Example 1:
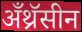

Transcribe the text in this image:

अँथ्रॅसीन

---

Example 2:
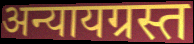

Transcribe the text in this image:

अन्यायग्रस्त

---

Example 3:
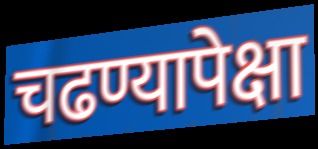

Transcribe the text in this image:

चढण्यापेक्षा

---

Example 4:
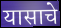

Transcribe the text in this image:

यासाचे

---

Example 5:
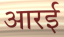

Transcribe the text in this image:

आरई